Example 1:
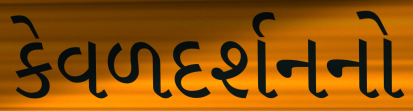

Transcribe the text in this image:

કેવળદર્શનનો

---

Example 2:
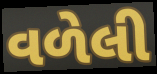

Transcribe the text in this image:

વળેલી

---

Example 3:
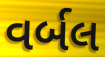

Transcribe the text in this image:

વર્બલ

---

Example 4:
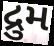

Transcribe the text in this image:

દ્રુમ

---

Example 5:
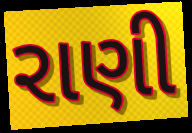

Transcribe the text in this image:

રાણી